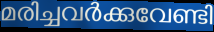
മരിച്ചവർക്കുവേണ്ടി